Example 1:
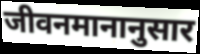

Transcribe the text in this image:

जीवनमानानुसार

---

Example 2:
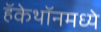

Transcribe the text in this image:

हॅकेथॉनमध्ये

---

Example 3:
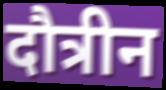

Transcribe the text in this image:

दौत्रीन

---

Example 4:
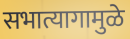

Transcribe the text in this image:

सभात्यागामुळे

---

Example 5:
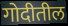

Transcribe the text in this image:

गोदीतील